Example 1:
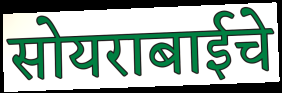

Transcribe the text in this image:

सोयराबाईचे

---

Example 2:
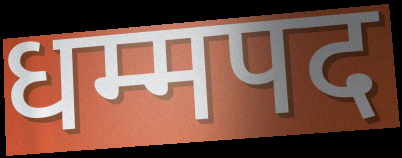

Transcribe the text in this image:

धम्मपद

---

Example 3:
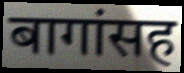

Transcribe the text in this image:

बागांसह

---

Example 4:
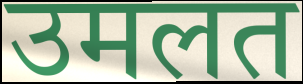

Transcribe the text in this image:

उमलत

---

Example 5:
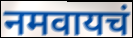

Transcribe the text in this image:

नमवायचं